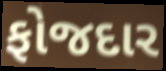
ફોજદાર